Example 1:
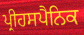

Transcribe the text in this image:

ਪ੍ਰੀਹਸਪੈਨਿਕ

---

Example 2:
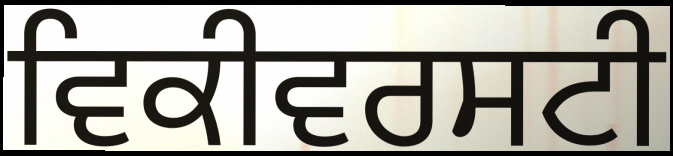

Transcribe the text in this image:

ਵਿਕੀਵਰਸਟੀ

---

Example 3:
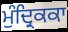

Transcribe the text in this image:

ਮੁੰਦ੍ਰਿਕਕਾ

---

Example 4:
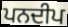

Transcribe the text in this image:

ਪਨਦੀਪ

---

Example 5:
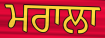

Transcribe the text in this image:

ਮਰਾਲਾ